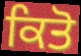
ਕਿਤੋ